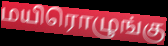
மயிரொழுங்கு